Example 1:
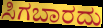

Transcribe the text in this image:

ಸಿಗಬಾರದು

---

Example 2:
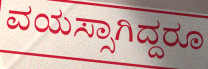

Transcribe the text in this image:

ವಯಸ್ಸಾಗಿದ್ದರೂ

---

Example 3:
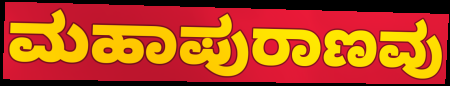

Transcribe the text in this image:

ಮಹಾಪುರಾಣವು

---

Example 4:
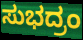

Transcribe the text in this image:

ಸುಭದ್ರಂ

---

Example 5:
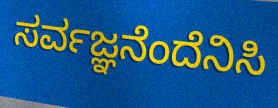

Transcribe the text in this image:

ಸರ್ವಜ್ಞನೆಂದೆನಿಸಿ